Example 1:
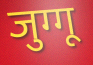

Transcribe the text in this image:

जुग्गू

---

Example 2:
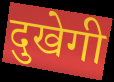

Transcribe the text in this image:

दुखेगी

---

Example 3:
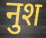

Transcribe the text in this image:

नुश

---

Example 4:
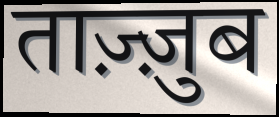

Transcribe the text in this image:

ताज़्ज़ुब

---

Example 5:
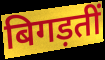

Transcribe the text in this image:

बिगड़तीं